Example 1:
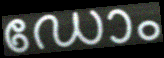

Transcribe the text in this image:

ഡോം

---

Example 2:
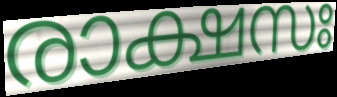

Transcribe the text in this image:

രാക്ഷസഃ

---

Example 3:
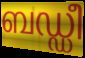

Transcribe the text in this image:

ബഡ്ഡീ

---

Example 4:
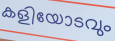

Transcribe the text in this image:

കളിയോടവും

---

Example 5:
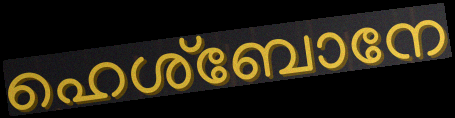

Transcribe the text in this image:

ഹെശ്ബോനേ